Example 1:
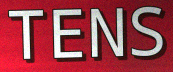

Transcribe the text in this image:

TENS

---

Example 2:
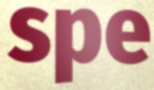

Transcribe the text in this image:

spe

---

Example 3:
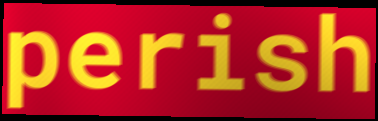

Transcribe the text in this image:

perish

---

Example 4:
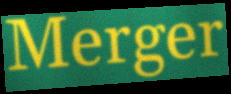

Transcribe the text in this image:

Merger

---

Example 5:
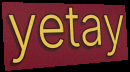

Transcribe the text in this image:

yetay